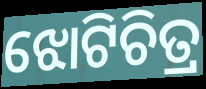
ଝୋଟିଚିତ୍ର